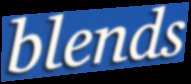
blends